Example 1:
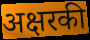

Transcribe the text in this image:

अक्षरकी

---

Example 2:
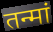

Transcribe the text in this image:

तन्मां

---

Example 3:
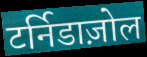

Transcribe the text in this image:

टर्निडाज़ोल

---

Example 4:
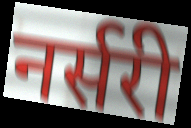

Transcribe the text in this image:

नर्सरी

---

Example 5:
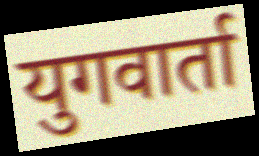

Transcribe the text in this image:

युगवार्ता